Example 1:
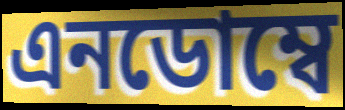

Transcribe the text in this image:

এনডোম্বে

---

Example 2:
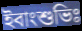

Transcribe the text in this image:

ইবাংশুভিঃ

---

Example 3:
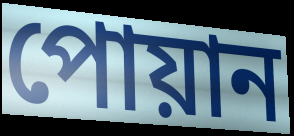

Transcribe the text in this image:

পোয়ান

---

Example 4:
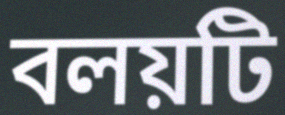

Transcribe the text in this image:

বলয়টি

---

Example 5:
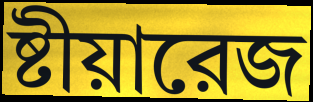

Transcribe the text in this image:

ষ্টীয়ারেজ